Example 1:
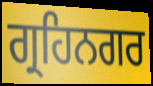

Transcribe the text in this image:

ਗ੍ਰਹਿਨਗਰ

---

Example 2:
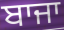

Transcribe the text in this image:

ਬਾਜਾ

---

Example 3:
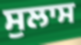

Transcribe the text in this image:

ਸੁਲਾਸ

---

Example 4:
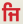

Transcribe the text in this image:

ਜਿ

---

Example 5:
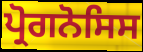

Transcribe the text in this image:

ਪ੍ਰੋਗਨੋਸਿਸ